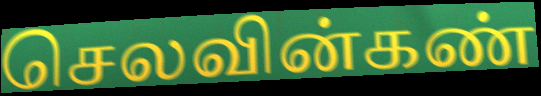
செலவின்கண்